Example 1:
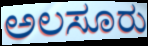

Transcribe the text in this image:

ಅಲಸೂರು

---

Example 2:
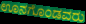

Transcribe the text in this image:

ಊನಗೊಂಡವರು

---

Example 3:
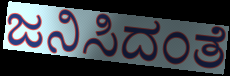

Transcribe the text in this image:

ಜನಿಸಿದಂತೆ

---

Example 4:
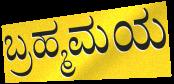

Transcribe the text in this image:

ಬ್ರಹ್ಮಮಯ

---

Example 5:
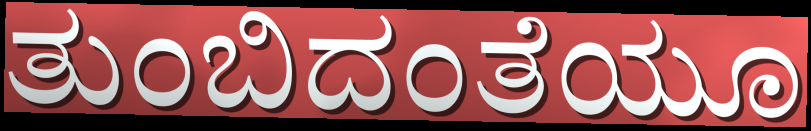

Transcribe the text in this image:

ತುಂಬಿದಂತೆಯೂ